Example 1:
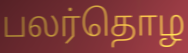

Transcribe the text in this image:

பலர்தொழ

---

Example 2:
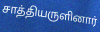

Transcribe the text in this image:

சாத்தியருளினார்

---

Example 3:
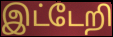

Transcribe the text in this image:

இட்டேறி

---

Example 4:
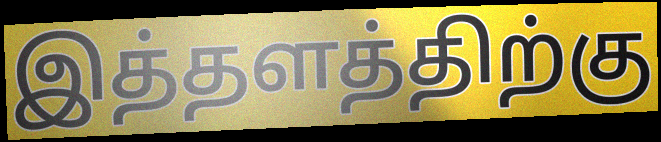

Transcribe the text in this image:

இத்தளத்திற்கு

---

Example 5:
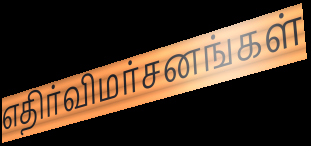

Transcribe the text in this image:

எதிர்விமர்சனங்கள்